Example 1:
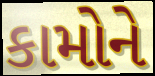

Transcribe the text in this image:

કામોને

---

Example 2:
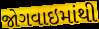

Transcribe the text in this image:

જોગવાઇમાંથી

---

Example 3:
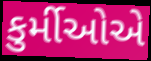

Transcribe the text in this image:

કુર્મીઓએ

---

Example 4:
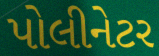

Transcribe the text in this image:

પોલીનેટર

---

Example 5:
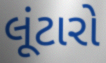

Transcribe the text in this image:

લૂંટારો